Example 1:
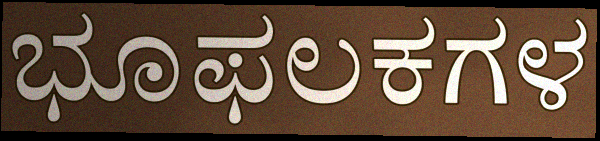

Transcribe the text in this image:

ಭೂಫಲಕಗಳ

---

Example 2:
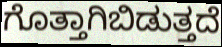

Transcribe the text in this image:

ಗೊತ್ತಾಗಿಬಿಡುತ್ತದೆ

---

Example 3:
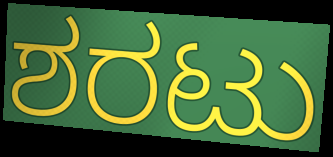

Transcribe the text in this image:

ಶರಟು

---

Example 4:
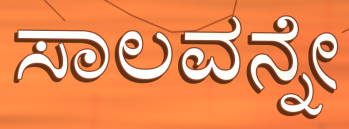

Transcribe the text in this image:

ಸಾಲವನ್ನೇ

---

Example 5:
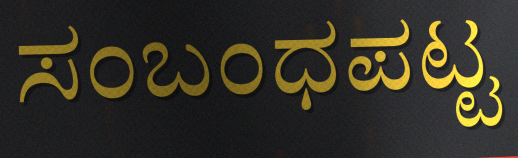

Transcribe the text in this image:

ಸಂಬಂಧಪಟ್ಟ